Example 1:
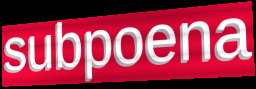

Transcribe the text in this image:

subpoena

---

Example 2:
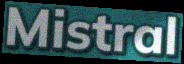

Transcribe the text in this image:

Mistral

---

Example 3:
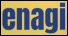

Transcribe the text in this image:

enagi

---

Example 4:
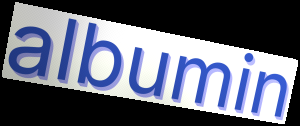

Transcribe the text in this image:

albumin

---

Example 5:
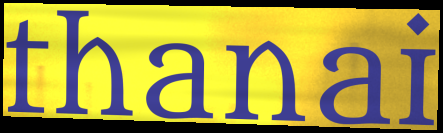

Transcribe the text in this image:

thanai